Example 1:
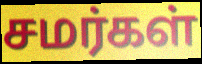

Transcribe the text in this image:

சமர்கள்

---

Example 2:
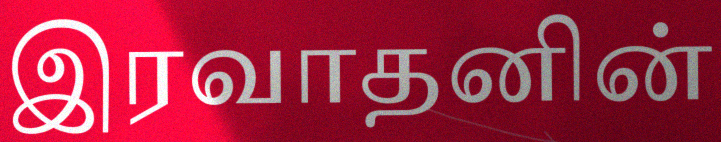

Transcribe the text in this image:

இரவாதனின்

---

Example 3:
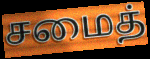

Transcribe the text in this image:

சமைத்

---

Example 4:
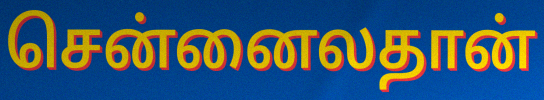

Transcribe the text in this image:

சென்னைலதான்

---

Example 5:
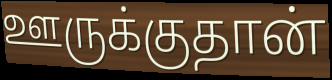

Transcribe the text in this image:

ஊருக்குதான்